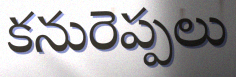
కనురెప్పలు